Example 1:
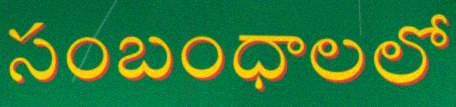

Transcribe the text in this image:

సంబంధాలలో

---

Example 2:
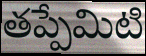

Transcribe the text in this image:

తప్పేమిటి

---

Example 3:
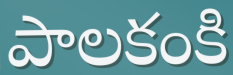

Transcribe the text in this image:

పాలకంకి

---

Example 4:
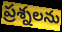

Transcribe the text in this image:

ప్రశ్నలను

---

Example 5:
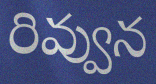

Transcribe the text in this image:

రివ్వున